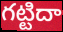
గట్టిదా